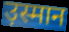
उ़स्मान